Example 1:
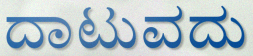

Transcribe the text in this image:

ದಾಟುವದು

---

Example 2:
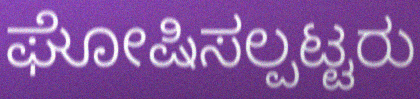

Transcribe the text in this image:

ಘೋಷಿಸಲ್ಪಟ್ಟರು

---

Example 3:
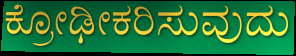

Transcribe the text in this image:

ಕ್ರೋಢೀಕರಿಸುವುದು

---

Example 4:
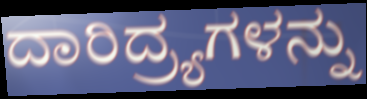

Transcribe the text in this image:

ದಾರಿದ್ರ್ಯಗಳನ್ನು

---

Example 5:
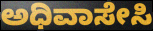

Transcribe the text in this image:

ಅಧಿವಾಸೇಸಿ